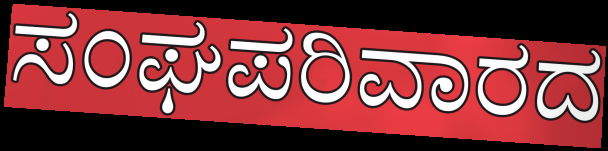
ಸಂಘಪರಿವಾರದ